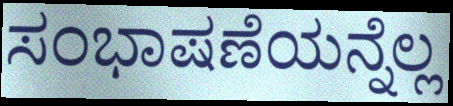
ಸಂಭಾಷಣೆಯನ್ನೆಲ್ಲ